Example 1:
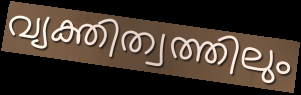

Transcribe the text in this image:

വ്യക്തിത്വത്തിലും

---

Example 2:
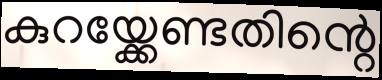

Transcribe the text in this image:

കുറയ്ക്കേണ്ടതിന്റെ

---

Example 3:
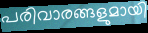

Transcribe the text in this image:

പരിവാരങ്ങളുമായി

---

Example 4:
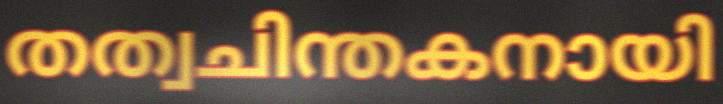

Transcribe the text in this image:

തത്വചിന്തകനായി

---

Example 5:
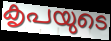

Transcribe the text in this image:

കൃപയുടെ